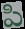
పి